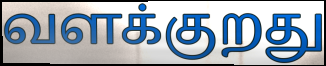
வளக்குறது